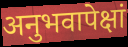
अनुभवापेक्षां